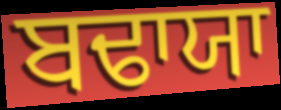
ਬਢਾਯਾ